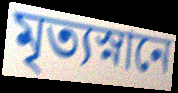
মৃত্যস্নানে